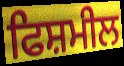
ਫਿਸ਼ਮੀਲ